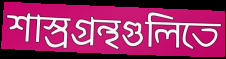
শাস্ত্রগ্রন্থগুলিতে